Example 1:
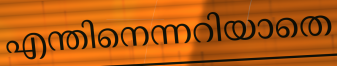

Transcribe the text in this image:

എന്തിനെന്നറിയാതെ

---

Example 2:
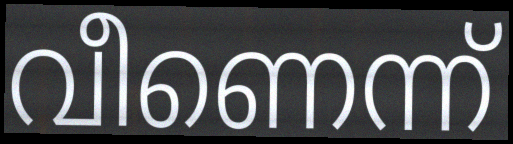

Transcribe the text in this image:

വീണെന്ന്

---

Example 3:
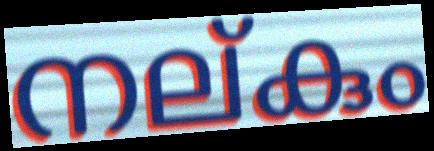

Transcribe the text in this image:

നല്‌കും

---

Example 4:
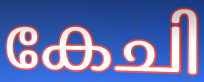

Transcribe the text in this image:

കേചി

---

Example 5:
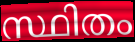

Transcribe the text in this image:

സ്ഥിതം